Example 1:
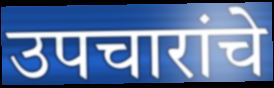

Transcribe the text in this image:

उपचारांचे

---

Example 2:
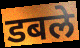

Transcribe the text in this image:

डबले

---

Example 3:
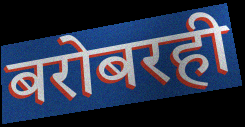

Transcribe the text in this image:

बरोबरही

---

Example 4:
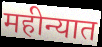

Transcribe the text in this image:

महीन्यात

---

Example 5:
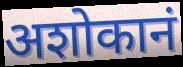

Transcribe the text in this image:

अशोकानं